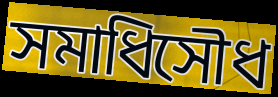
সমাধিসৌধ